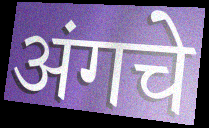
अंगचे